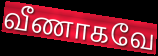
வீணாகவே